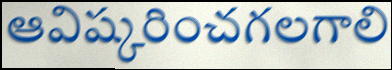
ఆవిష్కరించగలగాలి